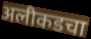
अलीकडचा